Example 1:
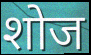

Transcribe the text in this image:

शोज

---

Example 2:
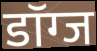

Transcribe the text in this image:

डॉग्ज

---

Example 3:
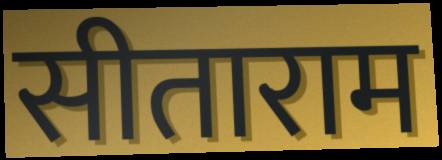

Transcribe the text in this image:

सीताराम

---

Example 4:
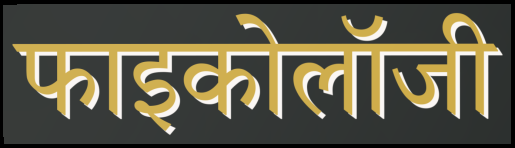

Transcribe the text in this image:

फाइकोलॉजी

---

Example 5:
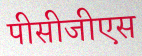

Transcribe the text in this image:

पीसीजीएस